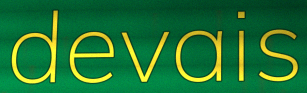
devais